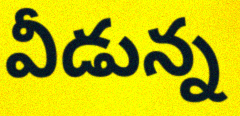
వీడున్న